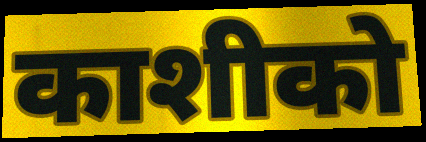
काशीको